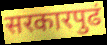
सरकारपुढं